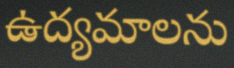
ఉద్యమాలను